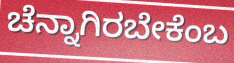
ಚೆನ್ನಾಗಿರಬೇಕೆಂಬ